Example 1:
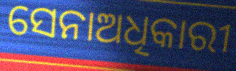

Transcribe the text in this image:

ସେନାଅଧିକାରୀ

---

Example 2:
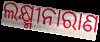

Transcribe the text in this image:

ଲକ୍ଷ୍ମୀନାରାଣ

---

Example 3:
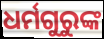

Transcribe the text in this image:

ଧର୍ମଗୁରୁଙ୍କ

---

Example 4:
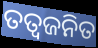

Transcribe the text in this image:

ତତ୍ଵଜନିତ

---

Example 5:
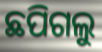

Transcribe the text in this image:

ଛପିଗଲୁ